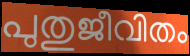
പുതുജീവിതം